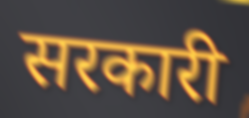
सरकारी